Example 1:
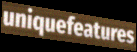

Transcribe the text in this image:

uniquefeatures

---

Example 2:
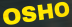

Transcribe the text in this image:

OSHO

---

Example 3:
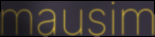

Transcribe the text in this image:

mausim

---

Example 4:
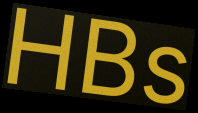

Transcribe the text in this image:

HBs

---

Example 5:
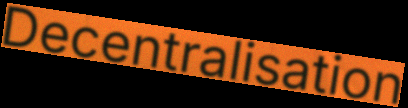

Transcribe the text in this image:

Decentralisation